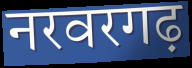
नरवरगढ़